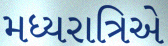
મધ્યરાત્રિએ